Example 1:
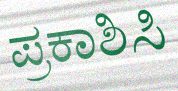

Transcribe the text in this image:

ಪ್ರಕಾಶಿಸಿ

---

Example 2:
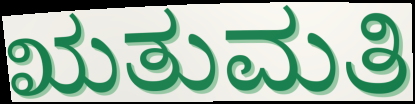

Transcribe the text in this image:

ಋತುಮತಿ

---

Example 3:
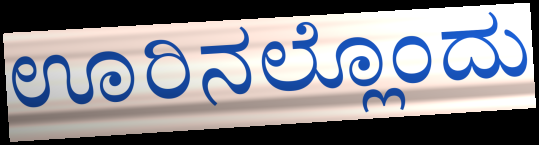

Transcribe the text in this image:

ಊರಿನಲ್ಲೊಂದು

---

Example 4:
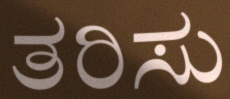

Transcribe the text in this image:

ತರಿಸು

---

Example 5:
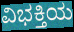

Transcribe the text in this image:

ವಿಭಕ್ತಿಯ